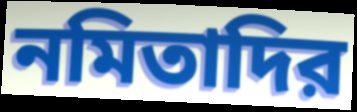
নমিতাদির